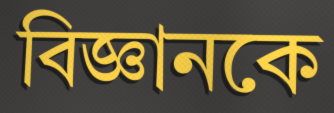
বিজ্ঞানকে